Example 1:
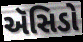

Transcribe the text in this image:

ઍસિડો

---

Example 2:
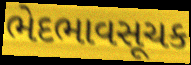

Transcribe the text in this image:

ભેદભાવસૂચક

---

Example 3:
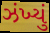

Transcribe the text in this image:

ઝંખ્યું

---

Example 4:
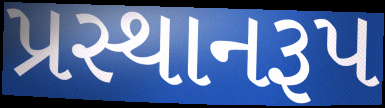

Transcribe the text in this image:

પ્રસ્થાનરૂપ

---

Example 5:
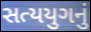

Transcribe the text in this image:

સત્યયુગનું